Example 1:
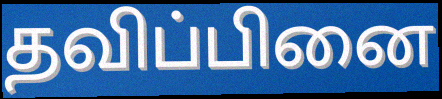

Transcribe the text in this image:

தவிப்பினை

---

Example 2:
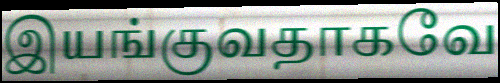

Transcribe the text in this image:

இயங்குவதாகவே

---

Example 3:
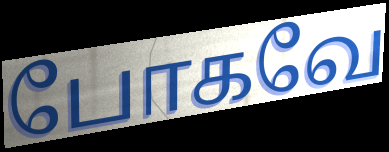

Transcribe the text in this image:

போகவே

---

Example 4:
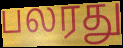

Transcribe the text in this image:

பலரது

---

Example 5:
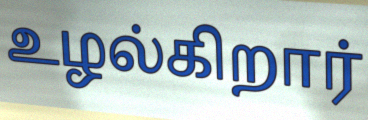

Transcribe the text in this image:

உழல்கிறார்